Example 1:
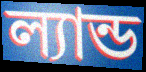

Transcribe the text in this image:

ল্যান্ড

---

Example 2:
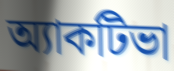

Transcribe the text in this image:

অ্যাকটিভা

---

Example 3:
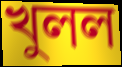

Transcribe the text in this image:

খুলল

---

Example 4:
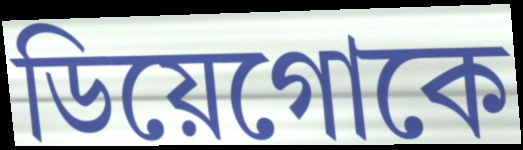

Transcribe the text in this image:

ডিয়েগোকে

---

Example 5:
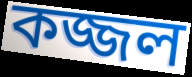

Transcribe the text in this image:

কজ্জল